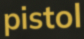
pistol